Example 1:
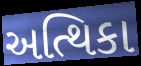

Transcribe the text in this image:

અત્થિકા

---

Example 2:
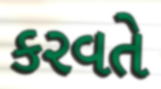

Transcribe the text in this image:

કરવતે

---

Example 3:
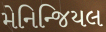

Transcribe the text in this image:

મેનિન્જિયલ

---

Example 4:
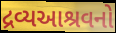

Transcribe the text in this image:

દ્રવ્યઆશ્રવનો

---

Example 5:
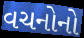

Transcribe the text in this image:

વચનોનો